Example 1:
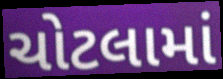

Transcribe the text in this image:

ચોટલામાં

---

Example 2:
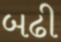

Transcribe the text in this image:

બઢી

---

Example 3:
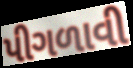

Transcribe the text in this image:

પીગળાવી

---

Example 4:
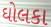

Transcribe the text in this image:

ઘોલકા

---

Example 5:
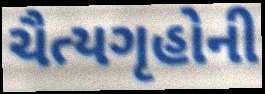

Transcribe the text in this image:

ચૈત્યગૃહોની